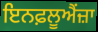
ਇਨਫ਼ਲੂਐਂਜ਼ਾ